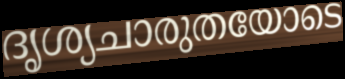
ദൃശ്യചാരുതയോടെ